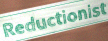
Reductionist